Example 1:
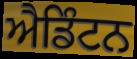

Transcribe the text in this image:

ਐਡਿੰਟਨ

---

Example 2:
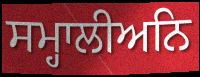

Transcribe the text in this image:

ਸਮ੍ਹਾਲੀਅਨਿ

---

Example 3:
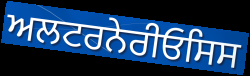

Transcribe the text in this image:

ਅਲਟਰਨੇਰੀਓਸਿਸ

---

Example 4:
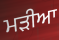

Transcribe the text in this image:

ਮਡ਼ੀਆ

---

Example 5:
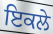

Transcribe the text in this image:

ਇਕਲੇ